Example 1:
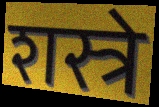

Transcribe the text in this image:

शस्त्रे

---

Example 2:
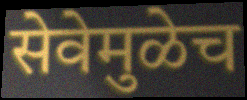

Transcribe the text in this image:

सेवेमुळेच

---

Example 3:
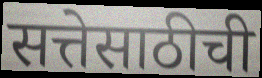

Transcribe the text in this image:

सत्तेसाठीची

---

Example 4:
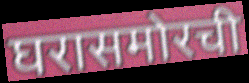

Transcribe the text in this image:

घरासमोरची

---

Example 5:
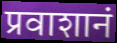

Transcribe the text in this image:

प्रवाशानं